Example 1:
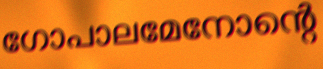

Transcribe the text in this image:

ഗോപാലമേനോന്റെ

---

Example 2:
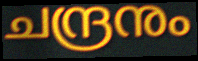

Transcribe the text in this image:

ചന്ദ്രനും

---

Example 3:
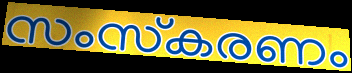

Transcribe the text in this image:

സംസ്‌കരണം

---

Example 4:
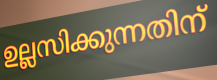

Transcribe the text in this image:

ഉല്ലസിക്കുന്നതിന്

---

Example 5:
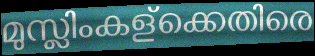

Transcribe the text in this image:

മുസ്ലിംകള്ക്കെതിരെ